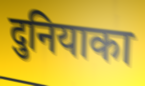
दुनियाका